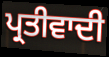
ਪ੍ਰਤੀਵਾਦੀ